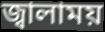
জ্বালাময়